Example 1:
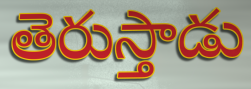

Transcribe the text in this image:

తెరుస్తాడు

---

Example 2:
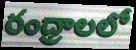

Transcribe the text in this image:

రంధ్రాలలో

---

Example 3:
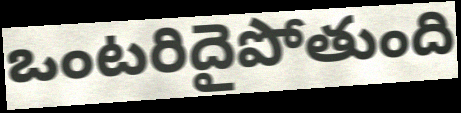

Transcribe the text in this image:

ఒంటరిదైపోతుంది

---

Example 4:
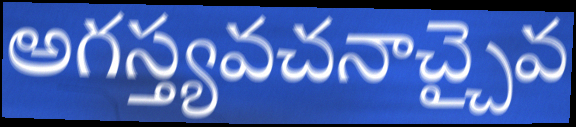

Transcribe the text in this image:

అగస్త్యవచనాచ్చైవ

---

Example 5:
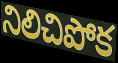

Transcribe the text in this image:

నిలిచిపోక